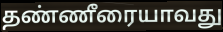
தண்ணீரையாவது